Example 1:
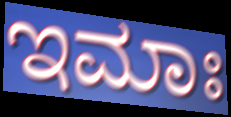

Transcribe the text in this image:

ಇಮಾಃ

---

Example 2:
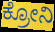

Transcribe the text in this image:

ಕ್ರೋನಿ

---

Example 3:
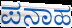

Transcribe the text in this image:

ಪನಾಹ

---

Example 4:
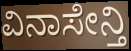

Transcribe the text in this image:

ವಿನಾಸೇನ್ತಿ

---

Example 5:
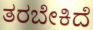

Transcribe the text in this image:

ತರಬೇಕಿದೆ